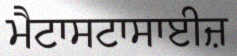
ਮੈਟਾਸਟਾਸਾਈਜ਼